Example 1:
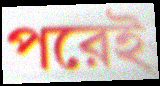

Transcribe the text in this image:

পরেই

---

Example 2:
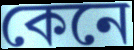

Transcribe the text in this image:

কেনে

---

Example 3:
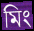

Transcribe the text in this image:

মিং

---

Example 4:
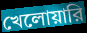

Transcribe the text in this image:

খেলোয়ারি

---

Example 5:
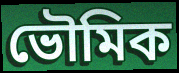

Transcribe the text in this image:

ভৌমিক